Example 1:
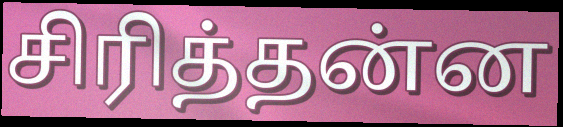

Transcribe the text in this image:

சிரித்தன்ன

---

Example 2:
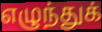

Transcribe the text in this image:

எழுந்துக்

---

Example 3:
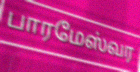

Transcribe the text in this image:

பாரமேஸ்வர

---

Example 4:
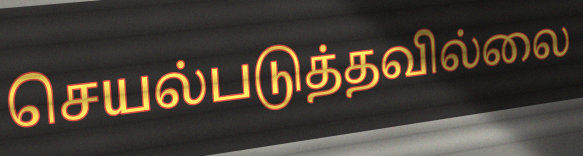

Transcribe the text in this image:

செயல்படுத்தவில்லை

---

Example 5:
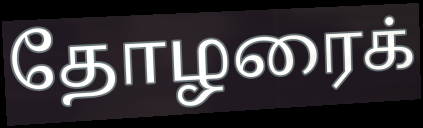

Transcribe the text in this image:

தோழரைக்